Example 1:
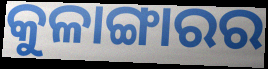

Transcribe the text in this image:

କୁଳାଙ୍ଗାରର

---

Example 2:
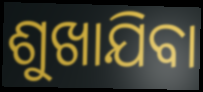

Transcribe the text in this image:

ଶୁଖାଯିବା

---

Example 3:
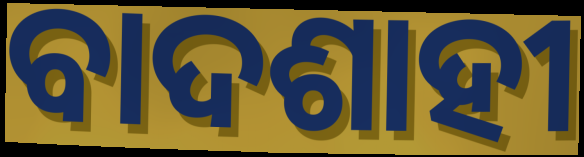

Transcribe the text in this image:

ବାଦଶାହୀ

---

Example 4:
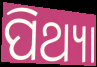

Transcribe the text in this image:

ପିଥ୍ୟା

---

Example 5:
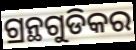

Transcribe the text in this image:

ଗ୍ରନ୍ଥଗୁଡିକର